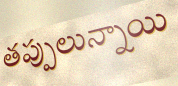
తప్పులున్నాయి